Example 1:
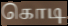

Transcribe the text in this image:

கொடி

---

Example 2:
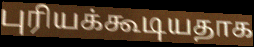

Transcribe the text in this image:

புரியக்கூடியதாக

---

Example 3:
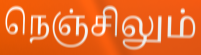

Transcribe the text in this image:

நெஞ்சிலும்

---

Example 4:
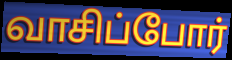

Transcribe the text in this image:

வாசிப்போர்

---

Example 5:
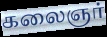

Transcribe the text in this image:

கலைஞர்